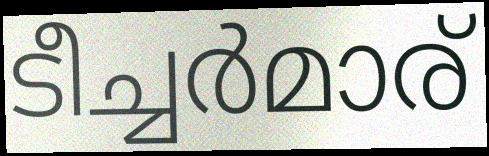
ടീച്ചർമാര്